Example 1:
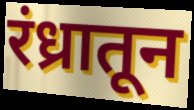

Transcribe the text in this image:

रंध्रातून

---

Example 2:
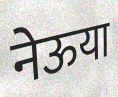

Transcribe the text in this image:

नेऊया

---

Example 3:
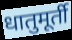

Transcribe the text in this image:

धातुमूर्ती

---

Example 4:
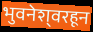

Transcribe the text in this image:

भुवनेश्वरहून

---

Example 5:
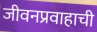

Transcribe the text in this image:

जीवनप्रवाहाची